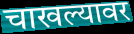
चाखल्यावर